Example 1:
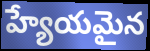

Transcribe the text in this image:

హ్యేయమైన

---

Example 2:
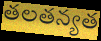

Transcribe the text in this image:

తలతన్యత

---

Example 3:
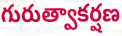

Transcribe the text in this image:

గురుత్వాకర్షణ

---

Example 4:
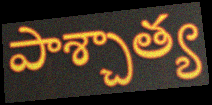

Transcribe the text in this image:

పాశ్చాత్య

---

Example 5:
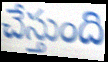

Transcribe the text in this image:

చేస్తుంది